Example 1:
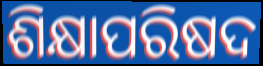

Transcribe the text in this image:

ଶିକ୍ଷାପରିଷଦ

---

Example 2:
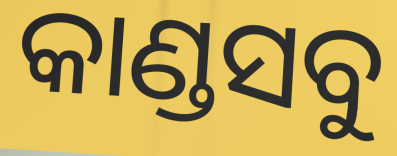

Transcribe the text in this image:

କାଣ୍ଡସବୁ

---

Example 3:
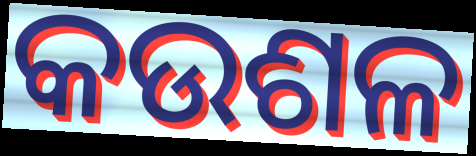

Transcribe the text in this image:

କଉଶଳ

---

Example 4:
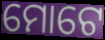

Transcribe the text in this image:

ମୋଟେ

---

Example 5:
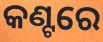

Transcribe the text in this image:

କଣ୍ଟରେ